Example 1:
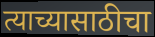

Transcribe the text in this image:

त्याच्यासाठीचा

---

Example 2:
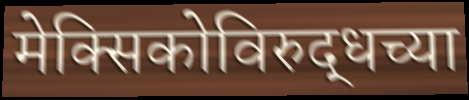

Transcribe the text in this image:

मेक्सिकोविरुद्धच्या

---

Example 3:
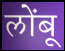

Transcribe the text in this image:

लोंबू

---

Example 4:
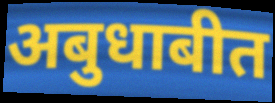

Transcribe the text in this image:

अबुधाबीत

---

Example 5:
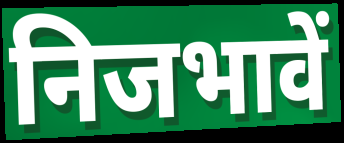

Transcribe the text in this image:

निजभावें